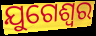
ଯୁଗେଶ୍ଵର